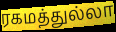
ரகமத்துல்லா